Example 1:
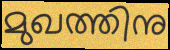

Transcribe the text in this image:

മുഖത്തിനു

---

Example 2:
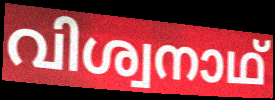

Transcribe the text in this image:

വിശ്വനാഥ്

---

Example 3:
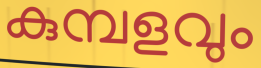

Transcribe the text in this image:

കുമ്പളവും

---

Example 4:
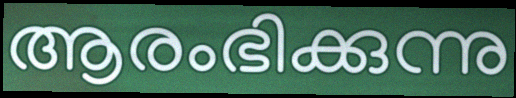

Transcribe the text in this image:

ആരംഭിക്കുന്നു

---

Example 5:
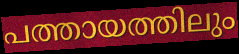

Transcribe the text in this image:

പത്തായത്തിലും